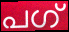
പഗ്